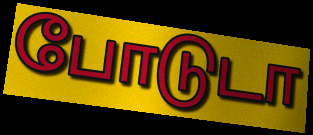
போடுடா